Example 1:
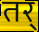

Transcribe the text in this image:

तर्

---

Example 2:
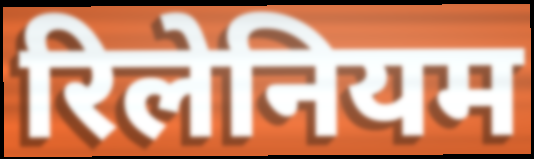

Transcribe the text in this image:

रिलेनियम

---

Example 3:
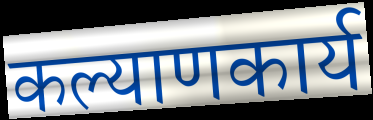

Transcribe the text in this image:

कल्याणकार्य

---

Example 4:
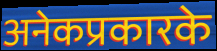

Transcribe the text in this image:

अनेकप्रकारके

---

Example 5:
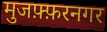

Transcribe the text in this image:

मुजफ़्फ़रनगर